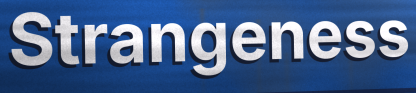
Strangeness